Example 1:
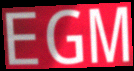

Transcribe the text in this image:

EGM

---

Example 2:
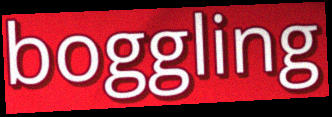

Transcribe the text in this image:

boggling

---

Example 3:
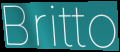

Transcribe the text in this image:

Britto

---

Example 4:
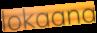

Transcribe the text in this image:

lokaana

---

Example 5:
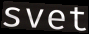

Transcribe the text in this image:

svet